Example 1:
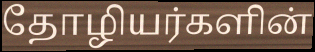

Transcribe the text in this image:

தோழியர்களின்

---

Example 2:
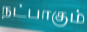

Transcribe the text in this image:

நட்பாகும்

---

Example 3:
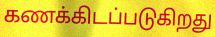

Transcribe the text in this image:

கணக்கிடப்படுகிறது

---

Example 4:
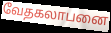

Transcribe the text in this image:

வேதகலாபனை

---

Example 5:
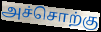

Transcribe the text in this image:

அச்சொற்கு